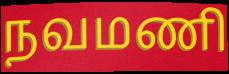
நவமணி